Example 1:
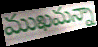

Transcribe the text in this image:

ముఖమన్నా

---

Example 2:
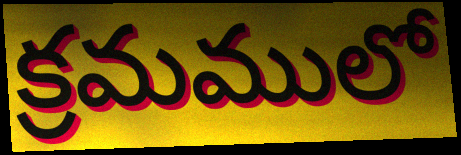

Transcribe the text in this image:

క్రమములో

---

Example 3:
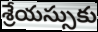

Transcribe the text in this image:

శ్రేయస్సుకు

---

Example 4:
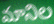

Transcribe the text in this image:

మానిల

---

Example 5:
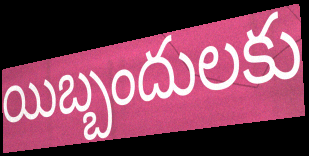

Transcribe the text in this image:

యిబ్బందులకు